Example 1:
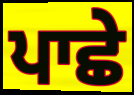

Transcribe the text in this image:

ਪਾਛੇ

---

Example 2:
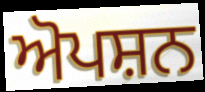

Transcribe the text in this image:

ਅੋਪਸ਼ਨ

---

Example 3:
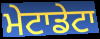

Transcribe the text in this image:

ਮੇਟਾਡੇਟਾ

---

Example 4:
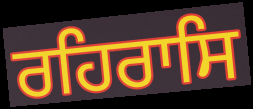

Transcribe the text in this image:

ਰਹਿਰਾਸਿ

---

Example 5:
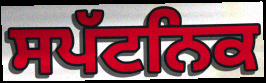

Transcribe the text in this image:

ਸਪੱਟਨਿਕ